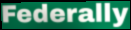
Federally